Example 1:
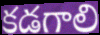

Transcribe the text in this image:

కడగాలి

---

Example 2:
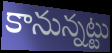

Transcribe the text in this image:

కానున్నట్టు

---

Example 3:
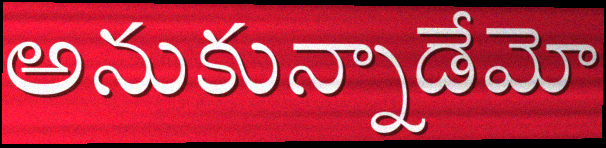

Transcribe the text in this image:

అనుకున్నాడేమో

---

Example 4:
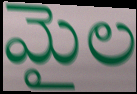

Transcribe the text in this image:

మైల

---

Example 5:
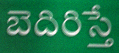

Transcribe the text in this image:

బెదిరిస్తే